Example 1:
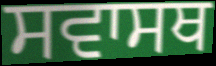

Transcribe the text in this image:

ਸਵਾਸਥ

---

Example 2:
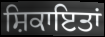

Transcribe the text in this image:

ਸ਼ਿਕਾਇਤਾਂ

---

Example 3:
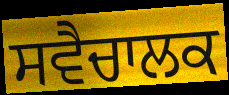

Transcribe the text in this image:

ਸਵੈਚਾਲਕ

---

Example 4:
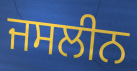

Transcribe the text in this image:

ਜਸਲੀਨ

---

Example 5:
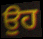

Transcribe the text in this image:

ਉੁਹ